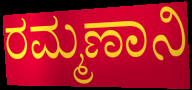
ರಮ್ಮಣಾನಿ